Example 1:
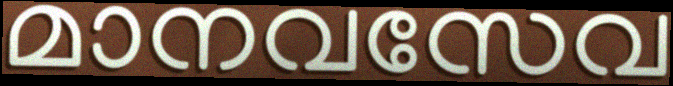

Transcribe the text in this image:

മാനവസേവ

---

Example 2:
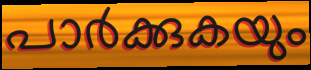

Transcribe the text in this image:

പാർക്കുകയും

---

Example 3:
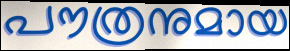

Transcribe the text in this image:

പൗത്രനുമായ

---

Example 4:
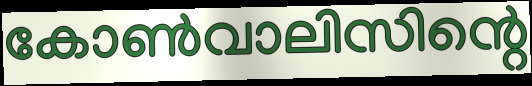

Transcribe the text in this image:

കോൺവാലിസിന്റെ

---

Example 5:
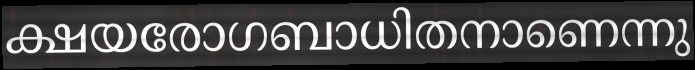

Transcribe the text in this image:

ക്ഷയരോഗബാധിതനാണെന്നു